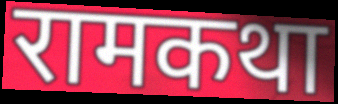
रामकथा